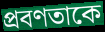
প্রবণতাকে